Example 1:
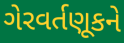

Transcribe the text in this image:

ગેરવર્તણૂકને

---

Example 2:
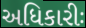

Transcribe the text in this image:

અધિકારીઃ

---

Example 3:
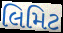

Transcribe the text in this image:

લિમિટ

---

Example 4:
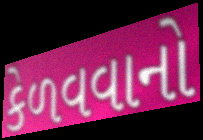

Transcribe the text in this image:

કેળવવાનો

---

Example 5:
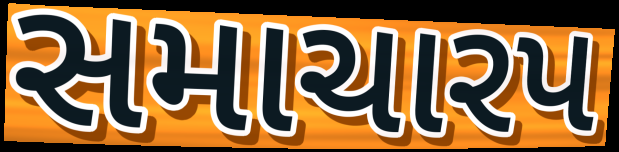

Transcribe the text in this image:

સમાચારપ